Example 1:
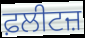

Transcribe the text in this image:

ਫ਼ਲੀਟਜ਼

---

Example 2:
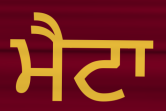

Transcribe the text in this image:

ਮੈਟਾ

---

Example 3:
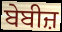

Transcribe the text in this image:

ਬੇਬੀਜ਼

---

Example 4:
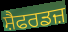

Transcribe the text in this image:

ਸ਼ੈਫਰਡਜ਼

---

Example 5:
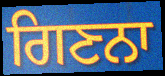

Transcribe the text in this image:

ਗਿਣਨਾ